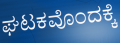
ಘಟಕವೊಂದಕ್ಕೆ